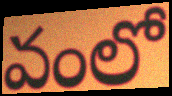
వంలో